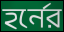
হর্নের